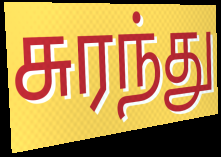
சுரந்து